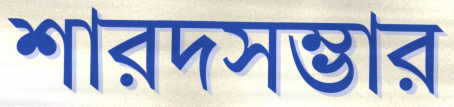
শারদসম্ভার